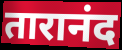
तारानंद